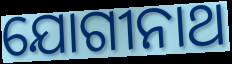
ଯୋଗୀନାଥ